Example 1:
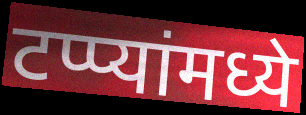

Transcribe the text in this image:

टप्प्यांमध्ये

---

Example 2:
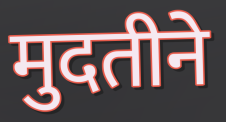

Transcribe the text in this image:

मुदतीने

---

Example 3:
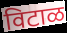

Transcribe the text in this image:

विटाळ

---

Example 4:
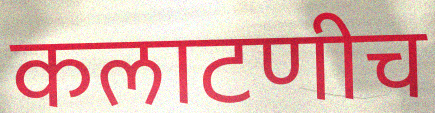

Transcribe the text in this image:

कलाटणीच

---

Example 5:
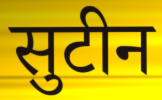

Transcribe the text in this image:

सुटीन